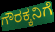
ಗೌರಕ್ಕನಿಗೆ